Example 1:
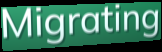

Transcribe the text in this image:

Migrating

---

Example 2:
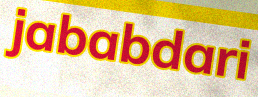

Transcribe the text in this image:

jababdari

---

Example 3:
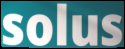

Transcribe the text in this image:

solus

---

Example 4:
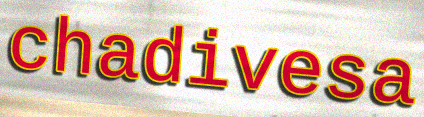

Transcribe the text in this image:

chadivesa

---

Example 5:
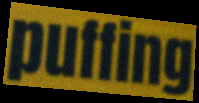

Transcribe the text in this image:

puffing